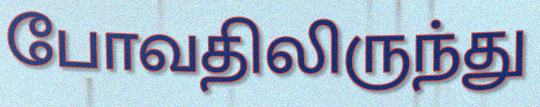
போவதிலிருந்து